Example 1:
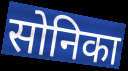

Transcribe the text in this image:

सोनिका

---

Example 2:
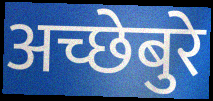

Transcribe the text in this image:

अच्छेबुरे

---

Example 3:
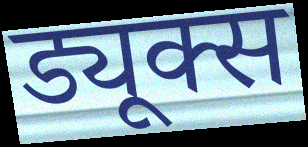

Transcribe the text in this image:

ड्यूक्स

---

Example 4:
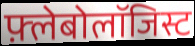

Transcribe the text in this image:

फ़्लेबोलॉजिस्ट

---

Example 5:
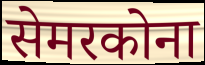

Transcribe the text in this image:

सेमरकोना